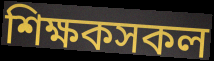
শিক্ষকসকল